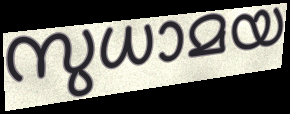
സുധാമയ